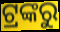
ଟ୍ରଙ୍କରୁ